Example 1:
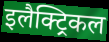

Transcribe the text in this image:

इलैक्ट्रिकल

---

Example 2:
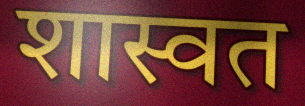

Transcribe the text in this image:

शास्वत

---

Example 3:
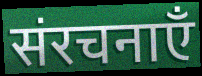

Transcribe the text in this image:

संरचनाएँ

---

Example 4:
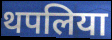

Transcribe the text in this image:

थपलिया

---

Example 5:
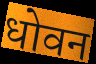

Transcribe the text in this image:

धोवन